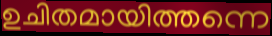
ഉചിതമായിത്തന്നെ